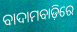
ବାଦାମବାଡ଼ିରେ